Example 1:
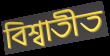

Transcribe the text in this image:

বিশ্বাতীত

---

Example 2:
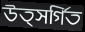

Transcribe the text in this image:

উত্সর্গিত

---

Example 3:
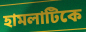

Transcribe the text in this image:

হামলাটিকে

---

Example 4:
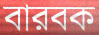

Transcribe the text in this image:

বারবক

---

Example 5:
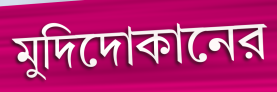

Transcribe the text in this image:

মুদিদোকানের